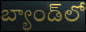
బ్యాండ్‌లో